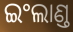
ଇଂଲାଣ୍ଡ